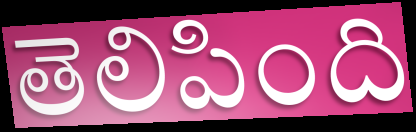
తెలిపింది